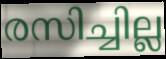
രസിച്ചില്ല